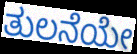
ತುಲನೆಯೇ